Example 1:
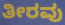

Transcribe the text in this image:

ತೀರವು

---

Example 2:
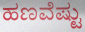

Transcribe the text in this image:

ಹಣವೆಷ್ಟು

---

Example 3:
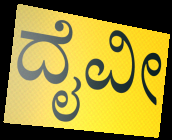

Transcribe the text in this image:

ದೈವೀ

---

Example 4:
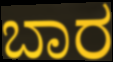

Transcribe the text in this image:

ಬಾರ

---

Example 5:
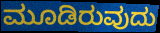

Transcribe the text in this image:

ಮೂಡಿರುವುದು